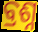
ବ୍ରଶ୍ନ